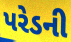
પરેડની